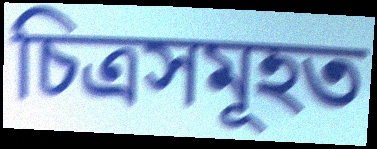
চিত্ৰসমূহত